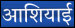
आशियाई